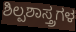
ಶಿಲ್ಪಶಾಸ್ತ್ರಗಳ